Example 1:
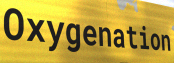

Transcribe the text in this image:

Oxygenation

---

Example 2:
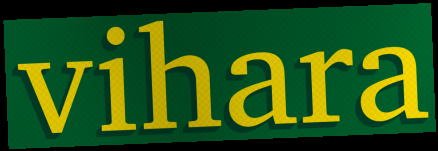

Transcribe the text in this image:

vihara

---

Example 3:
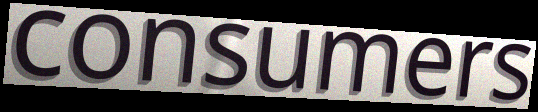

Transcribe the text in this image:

consumers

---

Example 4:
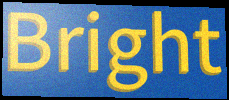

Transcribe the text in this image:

Bright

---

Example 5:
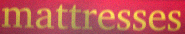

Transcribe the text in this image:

mattresses